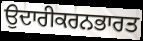
ਉਦਾਰੀਕਰਨਭਾਰਤ